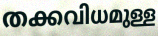
തക്കവിധമുള്ള